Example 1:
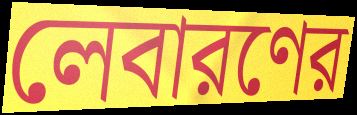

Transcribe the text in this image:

লেবারণের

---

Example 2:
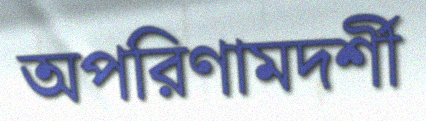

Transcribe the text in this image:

অপরিণামদর্শী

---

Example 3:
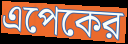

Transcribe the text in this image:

এপেকের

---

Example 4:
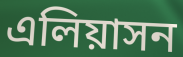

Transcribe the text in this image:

এলিয়াসন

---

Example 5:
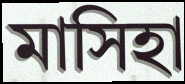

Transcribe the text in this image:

মাসিহা